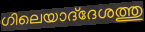
ഗിലെയാദ്‌ദേശത്തു